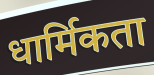
धार्मिकता